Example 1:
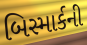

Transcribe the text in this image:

બિસ્માર્કની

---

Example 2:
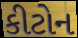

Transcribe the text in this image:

કીટોન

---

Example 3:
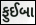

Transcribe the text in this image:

ફુઈબા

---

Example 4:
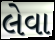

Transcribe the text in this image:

લેવા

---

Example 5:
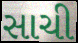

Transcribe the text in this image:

સાચી